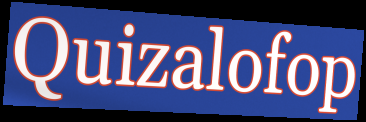
Quizalofop